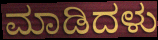
ಮಾಡಿದಳು